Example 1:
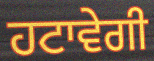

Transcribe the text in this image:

ਹਟਾਵੇਗੀ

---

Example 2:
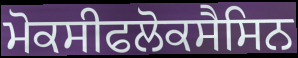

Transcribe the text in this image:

ਮੋਕਸੀਫਲੋਕਸੈਸਿਨ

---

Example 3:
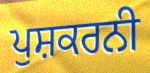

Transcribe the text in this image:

ਪੁਸ਼ਕਰਨੀ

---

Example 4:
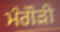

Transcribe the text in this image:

ਮੰਗੌੜੀ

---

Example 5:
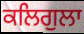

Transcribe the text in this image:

ਕਲਿਗੁਲਾ